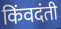
किंवदंती